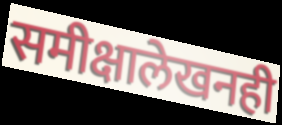
समीक्षालेखनही